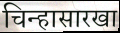
चिन्हासारखा